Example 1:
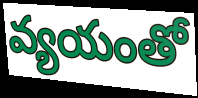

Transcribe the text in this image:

వ్యయంతో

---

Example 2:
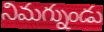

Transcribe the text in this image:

నిమగ్నుండు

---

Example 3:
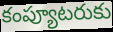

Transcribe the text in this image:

కంప్యూటరుకు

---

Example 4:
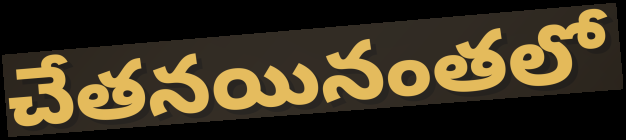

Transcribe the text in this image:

చేతనయినంతలో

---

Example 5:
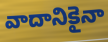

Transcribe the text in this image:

వాదానికైనా